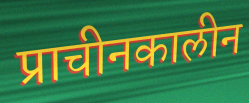
प्राचीनकालीन